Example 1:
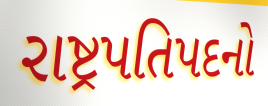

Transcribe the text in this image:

રાષ્ટ્રપતિપદનો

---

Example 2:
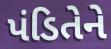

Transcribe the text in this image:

પંડિતેને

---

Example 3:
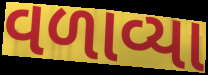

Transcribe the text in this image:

વળાવ્યા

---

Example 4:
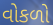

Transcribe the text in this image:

વોકળો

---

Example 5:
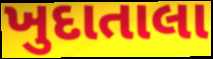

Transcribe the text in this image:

ખુદાતાલા